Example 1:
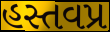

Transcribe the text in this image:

હસ્તવપ્ર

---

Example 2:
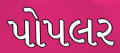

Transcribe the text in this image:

પોપલર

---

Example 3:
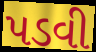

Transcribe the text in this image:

પડવી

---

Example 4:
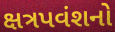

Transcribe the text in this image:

ક્ષત્રપવંશનો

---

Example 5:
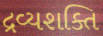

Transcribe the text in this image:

દ્રવ્યશક્તિ